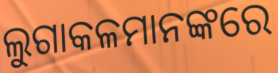
ଲୁଗାକଳମାନଙ୍କରେ